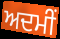
ਅਦਮੀਂ